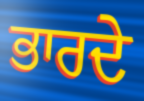
ਭਾਰਦੇ